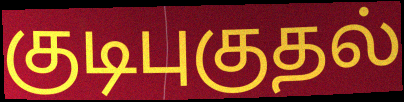
குடிபுகுதல்